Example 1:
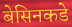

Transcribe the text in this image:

बेसिनकडे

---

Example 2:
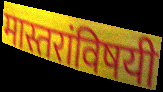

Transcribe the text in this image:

मास्तरांविषयी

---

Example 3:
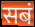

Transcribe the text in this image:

सबं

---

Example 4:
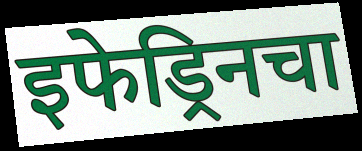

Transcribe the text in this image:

इफेड्रिनचा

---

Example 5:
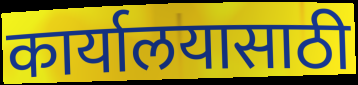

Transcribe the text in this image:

कार्यालयासाठी